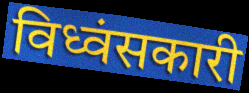
विध्वंसकारी